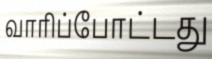
வாரிப்போட்டது